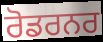
ਰੋਡਰਨਰ